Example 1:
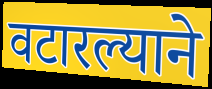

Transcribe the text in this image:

वटारल्याने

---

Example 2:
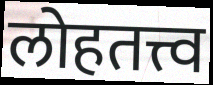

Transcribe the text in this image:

लोहतत्त्व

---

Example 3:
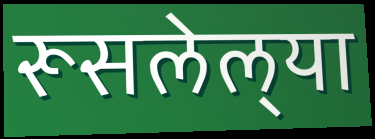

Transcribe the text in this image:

रूसलेल्या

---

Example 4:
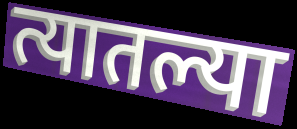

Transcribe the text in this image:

त्यातल्या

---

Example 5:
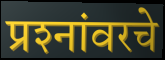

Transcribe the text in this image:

प्रश्नांवरचे